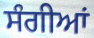
ਸੰਗੀਆਂ